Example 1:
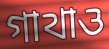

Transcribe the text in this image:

গাথাও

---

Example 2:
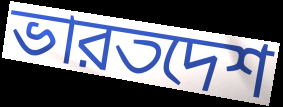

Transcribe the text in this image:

ভারতদেশ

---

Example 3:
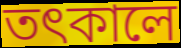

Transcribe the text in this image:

তৎকালে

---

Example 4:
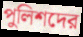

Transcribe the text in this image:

পুলিশদের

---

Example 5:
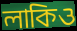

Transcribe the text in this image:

লাকিও